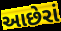
આછેરાં